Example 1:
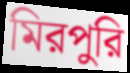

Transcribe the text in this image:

মিরপুরি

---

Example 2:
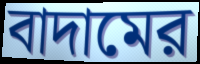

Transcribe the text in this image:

বাদামের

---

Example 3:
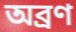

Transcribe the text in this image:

অব্রণ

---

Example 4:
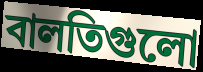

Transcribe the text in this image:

বালতিগুলো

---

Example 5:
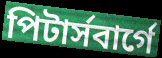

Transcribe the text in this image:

পিটার্সবার্গে